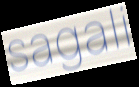
sagali